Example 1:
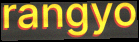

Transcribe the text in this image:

rangyo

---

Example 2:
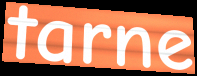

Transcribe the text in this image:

tarne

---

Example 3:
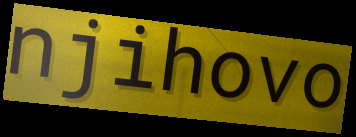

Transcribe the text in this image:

njihovo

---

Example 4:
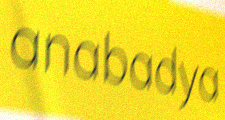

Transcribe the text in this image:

anabadya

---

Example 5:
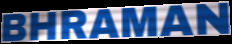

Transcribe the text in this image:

BHRAMAN